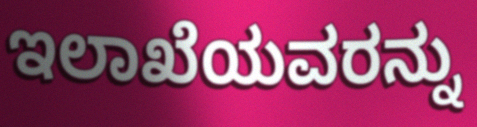
ಇಲಾಖೆಯವರನ್ನು